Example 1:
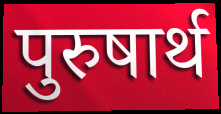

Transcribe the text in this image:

पुरुषार्थ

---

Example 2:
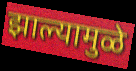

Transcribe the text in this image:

झाल्यामुळे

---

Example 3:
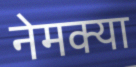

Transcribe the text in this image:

नेमक्या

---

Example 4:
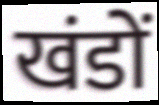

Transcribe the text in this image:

खंडों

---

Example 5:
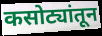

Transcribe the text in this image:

कसोट्यांतून